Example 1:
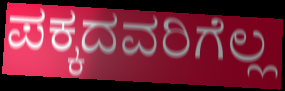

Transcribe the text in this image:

ಪಕ್ಕದವರಿಗೆಲ್ಲ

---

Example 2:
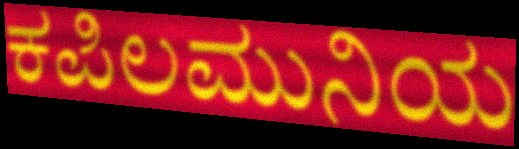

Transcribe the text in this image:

ಕಪಿಲಮುನಿಯ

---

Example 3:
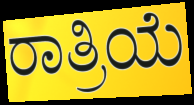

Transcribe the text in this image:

ರಾತ್ರಿಯೆ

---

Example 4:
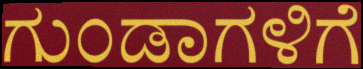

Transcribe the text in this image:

ಗುಂಡಾಗಳಿಗೆ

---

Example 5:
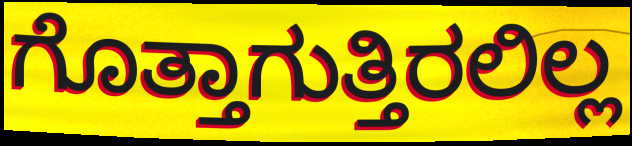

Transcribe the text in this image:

ಗೊತ್ತಾಗುತ್ತಿರಲಿಲ್ಲ